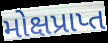
મોક્ષપ્રાપ્ત